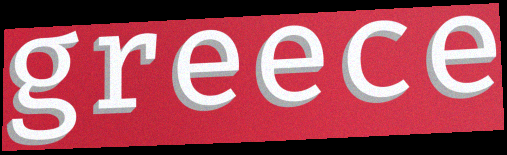
greece